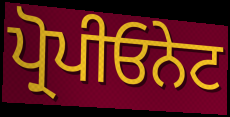
ਪ੍ਰੋਪੀਓਨੇਟ